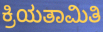
ಕ್ರಿಯತಾಮಿತಿ